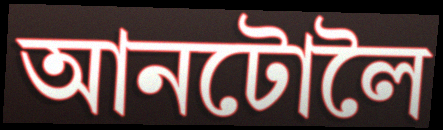
আনটোলৈ